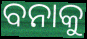
ବନାକୁ